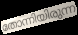
തോന്നിയിരുന്ന